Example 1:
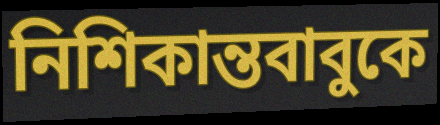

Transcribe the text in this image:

নিশিকান্তবাবুকে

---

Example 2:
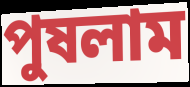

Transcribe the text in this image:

পুষলাম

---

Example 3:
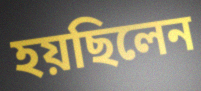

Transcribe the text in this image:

হয়ছিলেন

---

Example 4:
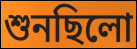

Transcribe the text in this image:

শুনছিলো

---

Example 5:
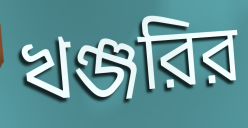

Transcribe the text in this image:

খঞ্জরির